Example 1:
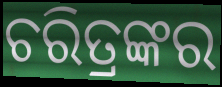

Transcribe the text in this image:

ଚରିତ୍ରଙ୍କର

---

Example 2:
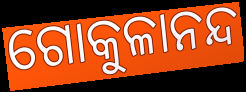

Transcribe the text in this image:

ଗୋକୁଳାନନ୍ଦ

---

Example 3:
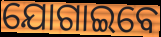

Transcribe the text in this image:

ଯୋଗାଇବେ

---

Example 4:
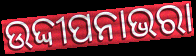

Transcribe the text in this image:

ଉଦ୍ଦୀପନାଭରା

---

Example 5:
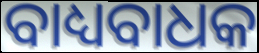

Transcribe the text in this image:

ବାଧ୍ୟବାଧକ